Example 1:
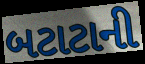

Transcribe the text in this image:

બટાટાની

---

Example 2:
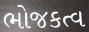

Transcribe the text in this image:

ભોજકત્વ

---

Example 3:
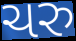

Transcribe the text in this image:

ચરુ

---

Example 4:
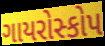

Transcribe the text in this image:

ગાયરોસ્કોપ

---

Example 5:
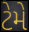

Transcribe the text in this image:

ટેમે